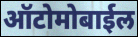
ऑटोमोबाईल